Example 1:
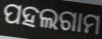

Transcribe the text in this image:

ପହଲଗାମ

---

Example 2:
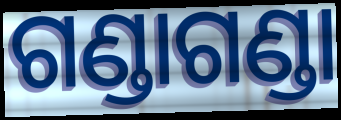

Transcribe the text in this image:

ଗଣ୍ଡାଗଣ୍ଡା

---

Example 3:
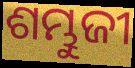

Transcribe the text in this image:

ଶମ୍ଭୁଜୀ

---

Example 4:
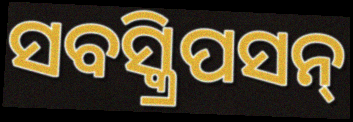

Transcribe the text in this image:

ସବସ୍କ୍ରିପସନ୍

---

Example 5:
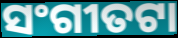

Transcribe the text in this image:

ସଂଗୀତଟା